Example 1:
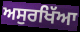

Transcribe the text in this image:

ਅਸੁਰਖਿੱਆ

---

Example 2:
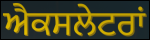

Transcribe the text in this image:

ਐਕਸਲੇਟਰਾਂ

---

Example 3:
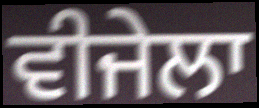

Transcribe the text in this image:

ਵੀਜੇਲਾ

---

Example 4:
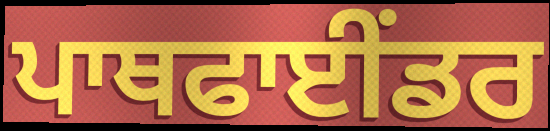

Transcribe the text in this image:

ਪਾਥਫਾਈਂਡਰ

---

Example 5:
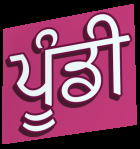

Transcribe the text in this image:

ਪੂੰਡੀ